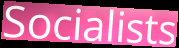
Socialists